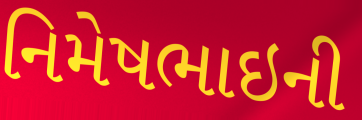
નિમેષભાઇની